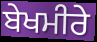
ਬੇਖਮੀਰੇ